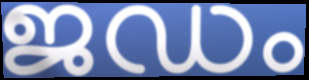
ജഡം